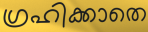
ഗ്രഹിക്കാതെ